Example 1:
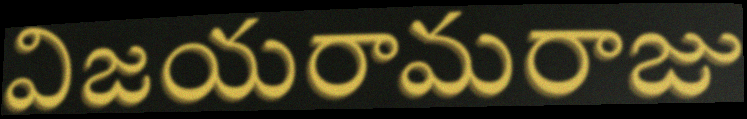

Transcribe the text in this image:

విజయరామరాజు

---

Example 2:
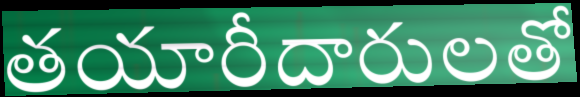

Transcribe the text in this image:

తయారీదారులతో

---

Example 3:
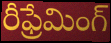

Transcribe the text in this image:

రీఫ్రేమింగ్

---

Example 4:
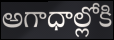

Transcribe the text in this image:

అగాధాల్లోకి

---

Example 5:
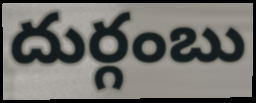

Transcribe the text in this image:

దుర్గంబు